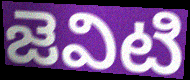
జెవిటి